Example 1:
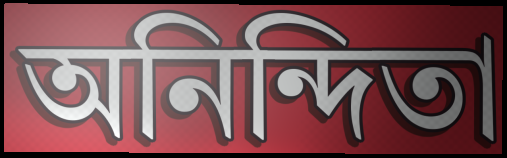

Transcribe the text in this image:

অনিন্দিতা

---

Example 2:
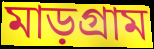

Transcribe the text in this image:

মাড়গ্রাম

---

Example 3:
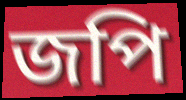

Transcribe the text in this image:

জপি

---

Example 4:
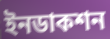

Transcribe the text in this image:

ইনডাকশন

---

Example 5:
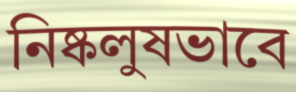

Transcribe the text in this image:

নিষ্কলুষভাবে